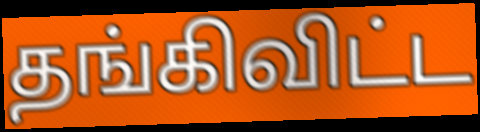
தங்கிவிட்ட